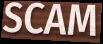
SCAM